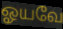
ஓயவே